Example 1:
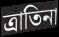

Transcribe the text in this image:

ত্রাতিনা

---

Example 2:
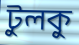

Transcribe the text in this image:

টুলকু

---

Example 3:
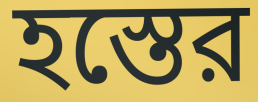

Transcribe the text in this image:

হস্তের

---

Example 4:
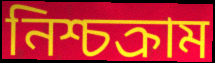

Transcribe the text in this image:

নিশ্চক্রাম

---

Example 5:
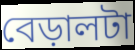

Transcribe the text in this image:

বেড়ালটা